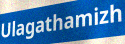
Ulagathamizh